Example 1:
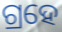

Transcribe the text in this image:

ଗ୍ରହେ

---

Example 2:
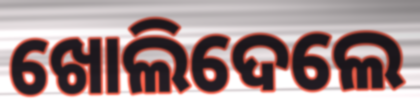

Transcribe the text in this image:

ଖୋଲିଦେଲେ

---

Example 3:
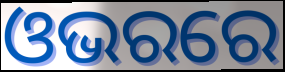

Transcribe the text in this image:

ଓଭରରେ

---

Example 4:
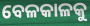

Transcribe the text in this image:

ବେଳକାଳକୁ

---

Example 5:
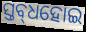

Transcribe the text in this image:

ସ୍ତବ୍‌ଧହୋଇ